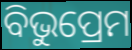
ବିଭୁପ୍ରେମ